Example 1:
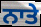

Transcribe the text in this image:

ਨਾਤੇ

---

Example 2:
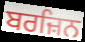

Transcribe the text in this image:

ਬਰਜ਼ਿਨ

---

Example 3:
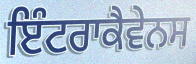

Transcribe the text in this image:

ਇੰਟਰਾਕੈਵੇਨਸ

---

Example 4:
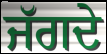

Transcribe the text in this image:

ਜੱਗਦੇ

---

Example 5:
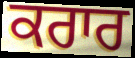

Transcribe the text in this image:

ਕਰਾਰ